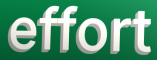
effort